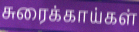
சுரைக்காய்கள்